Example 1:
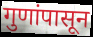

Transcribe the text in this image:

गुणांपासून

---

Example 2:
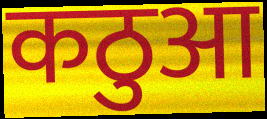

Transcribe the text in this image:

कठुआ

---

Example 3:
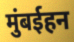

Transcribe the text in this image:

मुंबईहन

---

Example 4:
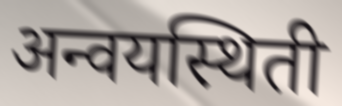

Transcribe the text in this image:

अन्वयस्थिती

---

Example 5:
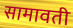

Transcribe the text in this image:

सामावती